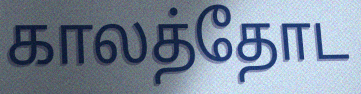
காலத்தோட